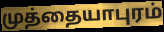
முத்தையாபுரம்